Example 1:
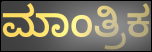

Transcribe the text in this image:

ಮಾಂತ್ರಿಕ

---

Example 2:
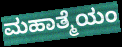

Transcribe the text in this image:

ಮಹಾತ್ಮೆಯಂ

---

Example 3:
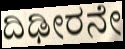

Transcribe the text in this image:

ದಿಢೀರನೇ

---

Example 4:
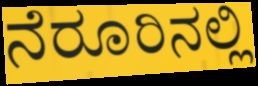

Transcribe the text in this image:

ನೆರೂರಿನಲ್ಲಿ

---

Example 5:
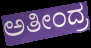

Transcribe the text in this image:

ಅತೀಂದ್ರ